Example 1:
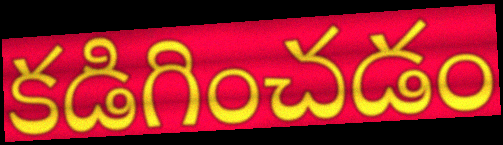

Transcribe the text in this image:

కడిగించడం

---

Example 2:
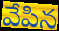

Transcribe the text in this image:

వేపిన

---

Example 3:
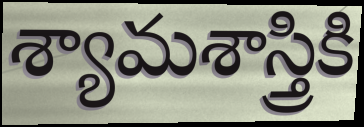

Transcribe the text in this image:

శ్యామశాస్త్రికి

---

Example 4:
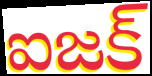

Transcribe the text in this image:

ఐజక్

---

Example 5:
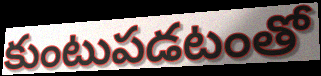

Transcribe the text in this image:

కుంటుపడటంతో